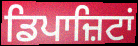
ਡਿਪਾਜ਼ਿਟਾਂ